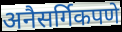
अनैसर्गिकपणे